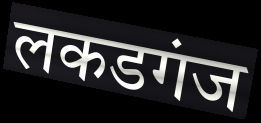
लकडगंज